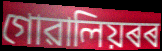
গোৱালিয়ৰৰ